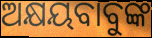
ଅକ୍ଷୟବାବୁଙ୍କ